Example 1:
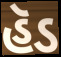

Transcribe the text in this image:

હૅડ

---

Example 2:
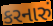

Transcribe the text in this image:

કરનારું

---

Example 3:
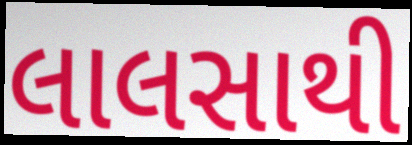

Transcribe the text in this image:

લાલસાથી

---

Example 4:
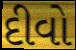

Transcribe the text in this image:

દીવો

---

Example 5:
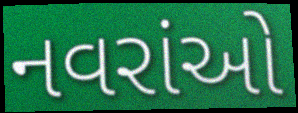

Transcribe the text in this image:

નવરાંઓ